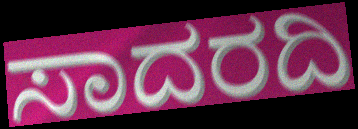
ಸಾದರದಿ